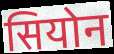
सियोन